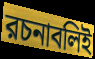
রচনাবলিই